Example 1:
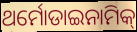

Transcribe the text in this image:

ଥର୍ମୋଡାଇନାମିକ୍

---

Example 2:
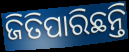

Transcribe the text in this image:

ଜିତିପାରିଛନ୍ତି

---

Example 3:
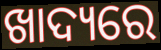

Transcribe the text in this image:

ଖାଦ୍ୟରେ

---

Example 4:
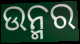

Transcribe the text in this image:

ଉନ୍ମର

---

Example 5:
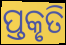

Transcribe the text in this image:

ପ୍ତକୃତି